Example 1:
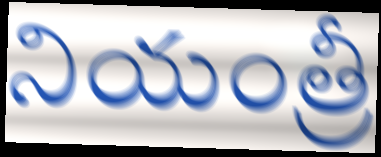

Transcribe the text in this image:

నియంత్రీ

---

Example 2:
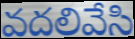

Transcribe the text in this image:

వదలివేసి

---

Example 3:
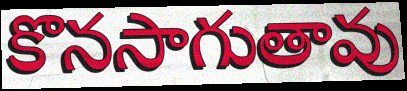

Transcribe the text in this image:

కొనసాగుతావు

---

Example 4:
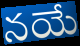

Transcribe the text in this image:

నయే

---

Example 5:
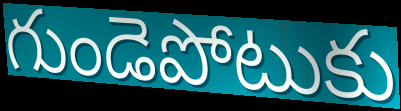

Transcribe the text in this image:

గుండెపోటుకు